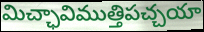
మిచ్ఛావిముత్తిపచ్చయా